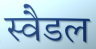
स्वैडल